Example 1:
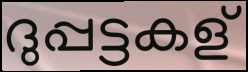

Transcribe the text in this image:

ദുപ്പട്ടകള്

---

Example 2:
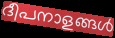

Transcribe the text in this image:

ദീപനാളങ്ങൾ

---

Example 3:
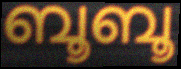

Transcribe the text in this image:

ബൂബൂ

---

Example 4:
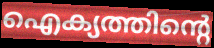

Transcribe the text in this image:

ഐക്യത്തിന്റെ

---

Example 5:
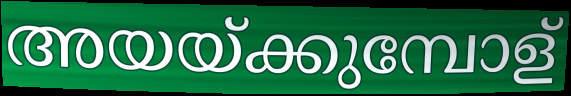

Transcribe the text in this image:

അയയ്ക്കുമ്പോള്